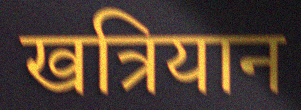
खत्रियान